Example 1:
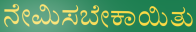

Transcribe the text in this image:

ನೇಮಿಸಬೇಕಾಯಿತು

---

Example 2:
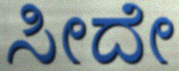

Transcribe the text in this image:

ಸೀದೇ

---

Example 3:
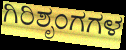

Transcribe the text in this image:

ಗಿರಿಶೃಂಗಗಳ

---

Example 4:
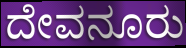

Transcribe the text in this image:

ದೇವನೂರು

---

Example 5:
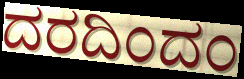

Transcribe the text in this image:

ದರದಿಂದಂ